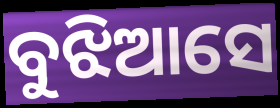
ବୁଝିଆସେ